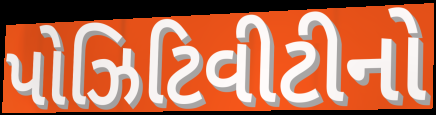
પોઝિટિવીટીનો